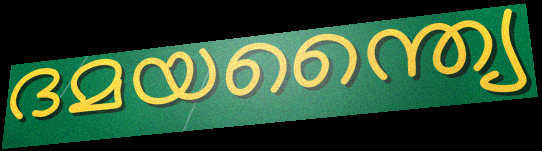
ദമയന്ത്യൈ